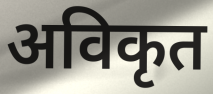
अविकृत